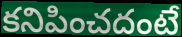
కనిపించదంటే